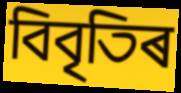
বিবৃতিৰ